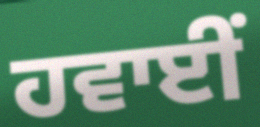
ਹਵਾਈਂ